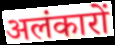
अलंकारों